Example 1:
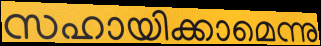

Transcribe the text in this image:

സഹായിക്കാമെന്നു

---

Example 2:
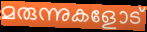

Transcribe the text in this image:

മരുന്നുകളോട്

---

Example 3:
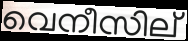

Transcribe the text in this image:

വെനീസില്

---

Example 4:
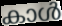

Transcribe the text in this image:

കാൾ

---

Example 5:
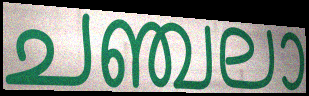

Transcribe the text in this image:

ചഞ്ചലാ